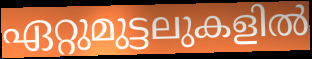
ഏറ്റുമുട്ടലുകളിൽ